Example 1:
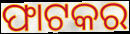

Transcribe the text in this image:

ଫାଟକର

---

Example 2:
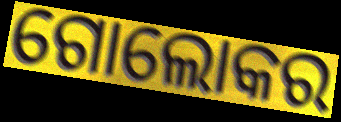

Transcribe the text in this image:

ଗୋଲୋକର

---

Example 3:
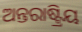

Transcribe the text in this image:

ଅନ୍ତରାଷ୍ଟ୍ରିୟ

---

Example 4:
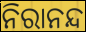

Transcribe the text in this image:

ନିରାନନ୍ଦ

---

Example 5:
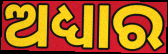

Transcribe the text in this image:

ଅଧ୍ୟାର